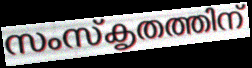
സംസ്‌കൃതത്തിന്